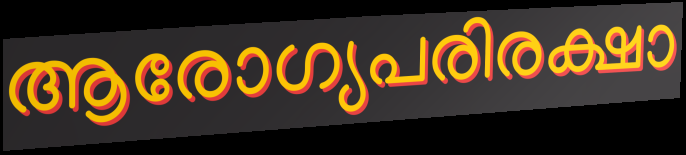
ആരോഗ്യപരിരക്ഷാ